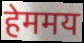
हेममय